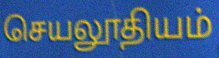
செயலூதியம்